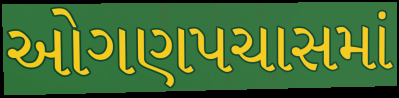
ઓગણપચાસમાં